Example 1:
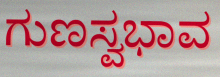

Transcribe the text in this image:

ಗುಣಸ್ವಭಾವ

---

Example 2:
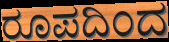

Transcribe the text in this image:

ರೂಪದಿಂದ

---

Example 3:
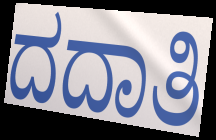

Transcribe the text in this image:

ದದಾತಿ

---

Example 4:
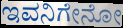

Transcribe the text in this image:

ಇವನಿಗೇನೋ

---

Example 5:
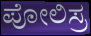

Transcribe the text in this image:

ಪೋಲಿಸ್ರ